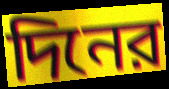
দিনের